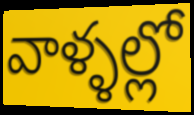
వాళ్ళల్లో